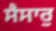
ਸੈਸਾਰੁ